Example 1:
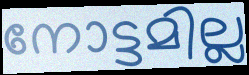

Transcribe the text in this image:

നോട്ടമില്ല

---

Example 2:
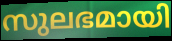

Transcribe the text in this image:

സുലഭമായി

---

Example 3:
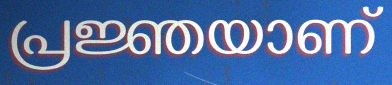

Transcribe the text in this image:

പ്രജ്ഞയാണ്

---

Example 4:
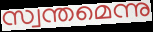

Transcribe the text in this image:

സ്വന്തമെന്നു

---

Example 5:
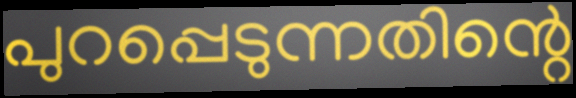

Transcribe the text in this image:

പുറപ്പെടുന്നതിന്റെ